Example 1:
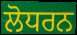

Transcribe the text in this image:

ਲੋਧਰਨ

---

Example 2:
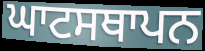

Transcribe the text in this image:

ਘਾਟਸਥਾਪਨ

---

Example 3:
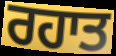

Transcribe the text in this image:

ਰਹਾਤ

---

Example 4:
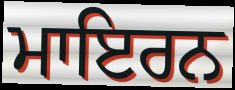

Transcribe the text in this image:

ਮਾਇਰਨ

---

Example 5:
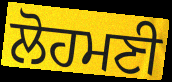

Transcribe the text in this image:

ਲੋਹਮਣੀ